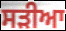
ਸੜੀਆ